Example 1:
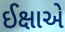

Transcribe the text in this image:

ઈક્ષાએ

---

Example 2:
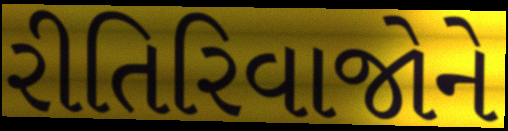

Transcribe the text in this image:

રીતિરિવાજોને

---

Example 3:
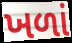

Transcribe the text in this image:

ખળાં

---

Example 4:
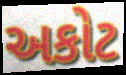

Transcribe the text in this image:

અકોટ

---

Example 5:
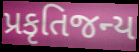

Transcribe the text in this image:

પ્રકૃતિજન્ય